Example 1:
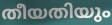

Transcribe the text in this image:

തീയതിയും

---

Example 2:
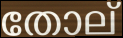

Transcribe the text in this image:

തോല്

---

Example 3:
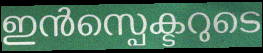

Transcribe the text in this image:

ഇൻസ്പെക്ടറുടെ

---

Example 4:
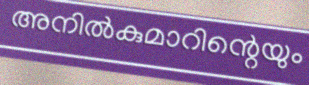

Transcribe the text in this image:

അനിൽകുമാറിന്റെയും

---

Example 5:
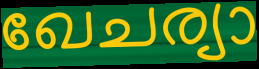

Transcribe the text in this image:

ഖേചര്യാ